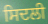
ਸਿਦਲੀ